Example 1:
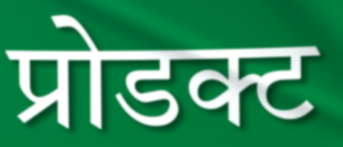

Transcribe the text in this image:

प्रोडक्ट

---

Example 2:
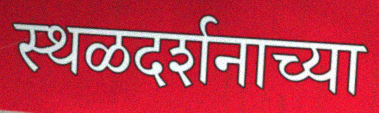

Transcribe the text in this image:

स्थळदर्शनाच्या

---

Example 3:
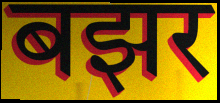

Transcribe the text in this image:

बझर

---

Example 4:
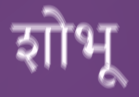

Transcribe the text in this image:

शोभू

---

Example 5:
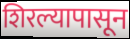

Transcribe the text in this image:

शिरल्यापासून